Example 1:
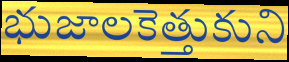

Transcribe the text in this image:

భుజాలకెత్తుకుని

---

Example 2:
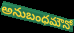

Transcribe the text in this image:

అనుబంధమౌనో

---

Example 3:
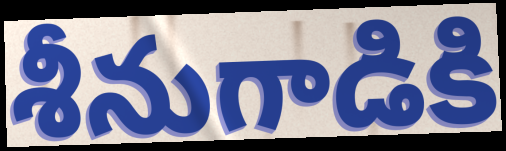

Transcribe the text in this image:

శీనుగాడికి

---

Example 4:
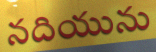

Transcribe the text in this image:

నదియును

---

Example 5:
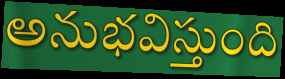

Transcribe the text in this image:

అనుభవిస్తుంది